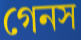
গেনস